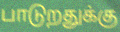
பாடுறதுக்கு